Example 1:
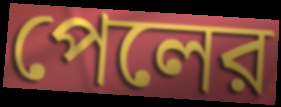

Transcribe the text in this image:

পেলের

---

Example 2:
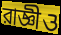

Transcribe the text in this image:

রাজ্ঞীও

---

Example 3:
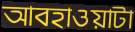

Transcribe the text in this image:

আবহাওয়াটা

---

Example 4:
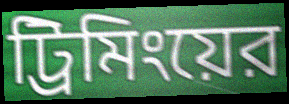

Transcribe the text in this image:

ট্রিমিংয়ের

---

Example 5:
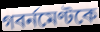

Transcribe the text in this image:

গবর্নমেণ্টকে